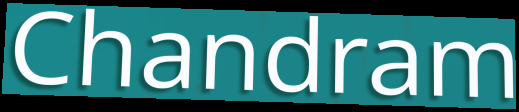
Chandram